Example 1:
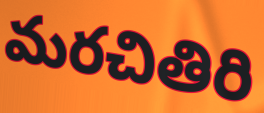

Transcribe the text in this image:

మరచితిరి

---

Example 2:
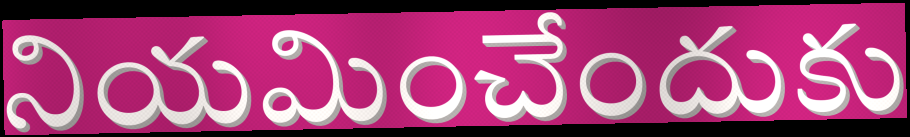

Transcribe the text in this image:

నియమించేందుకు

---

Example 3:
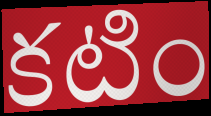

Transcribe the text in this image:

కటిం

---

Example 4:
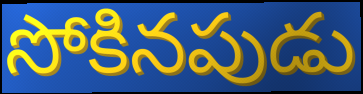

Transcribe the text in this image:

సోకినపుడు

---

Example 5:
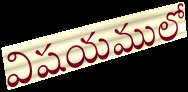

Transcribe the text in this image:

విషయములో